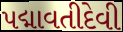
પદ્માવતીદેવી